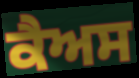
ਕੈਅਸ